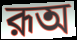
রূঅ